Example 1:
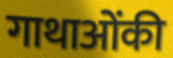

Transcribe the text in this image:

गाथाओंकी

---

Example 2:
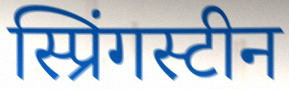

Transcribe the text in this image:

स्प्रिंगस्टीन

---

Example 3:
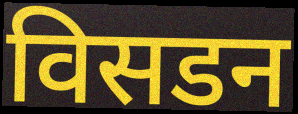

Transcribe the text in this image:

विसडन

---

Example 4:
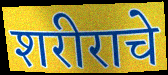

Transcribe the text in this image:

शरीराचे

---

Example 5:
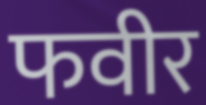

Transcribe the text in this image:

फवीर